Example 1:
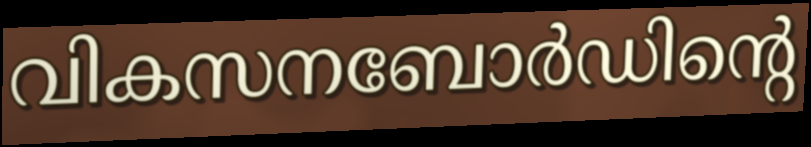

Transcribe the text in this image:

വികസനബോർഡിന്റെ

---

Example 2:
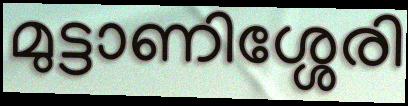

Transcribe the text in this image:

മുട്ടാണിശ്ശേരി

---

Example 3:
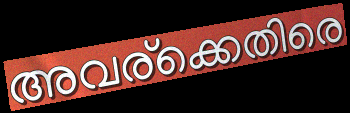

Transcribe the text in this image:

അവര്ക്കെതിരെ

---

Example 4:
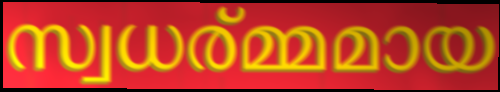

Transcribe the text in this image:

സ്വധര്മ്മമായ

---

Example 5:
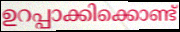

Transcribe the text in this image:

ഉറപ്പാക്കിക്കൊണ്ട്